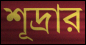
শূদ্রার